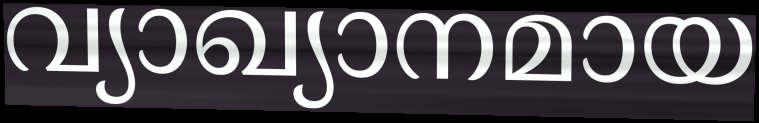
വ്യാഖ്യാനമായ